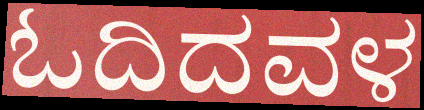
ಓದಿದವಳ